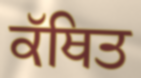
ਕੱਥਿਤ